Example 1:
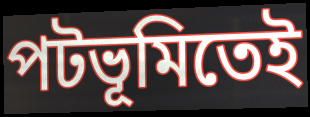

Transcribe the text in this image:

পটভূমিতেই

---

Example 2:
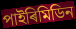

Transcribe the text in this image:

পাইৰিমিডিন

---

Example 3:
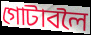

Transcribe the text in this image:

গোটাবলৈ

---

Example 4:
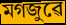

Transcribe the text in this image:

মগজুৱে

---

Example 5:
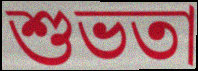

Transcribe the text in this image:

শুভতা